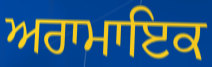
ਅਰਾਮਾਇਕ